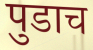
पुडाच